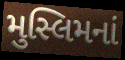
મુસ્લિમનાં